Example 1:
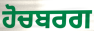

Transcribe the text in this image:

ਹੋਚਬਰਗ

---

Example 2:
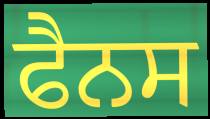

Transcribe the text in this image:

ਫੈਨਸ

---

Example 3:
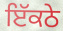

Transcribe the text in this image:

ਇੱਕਠੇ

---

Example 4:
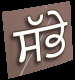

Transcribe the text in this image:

ਸੱਭੇ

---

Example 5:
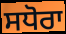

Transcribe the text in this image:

ਸਧੋਰਾ